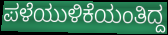
ಪಳೆಯುಳಿಕೆಯಂತಿದ್ದ